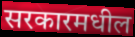
सरकारमधील